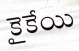
కైకేయి